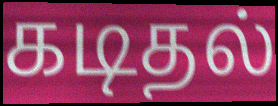
கடிதல்